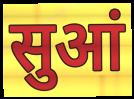
सुआं